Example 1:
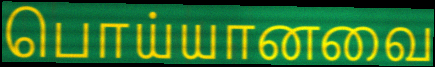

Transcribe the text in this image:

பொய்யானவை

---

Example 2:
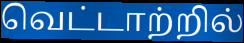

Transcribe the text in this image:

வெட்டாற்றில்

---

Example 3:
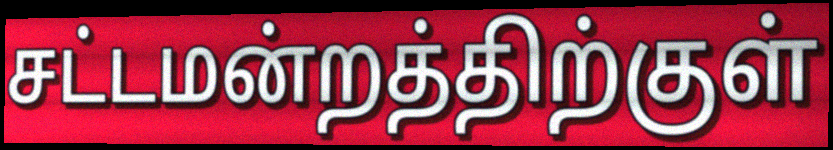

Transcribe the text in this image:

சட்டமன்றத்திற்குள்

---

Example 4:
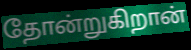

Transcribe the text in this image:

தோன்றுகிறான்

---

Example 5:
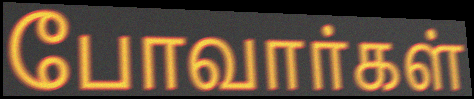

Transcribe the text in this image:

போவார்கள்